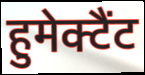
हुमेक्टैंट